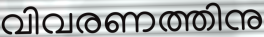
വിവരണത്തിനു